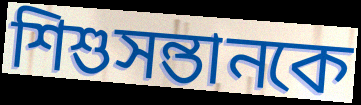
শিশুসন্তানকে